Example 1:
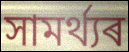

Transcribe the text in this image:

সামৰ্থ্যৰ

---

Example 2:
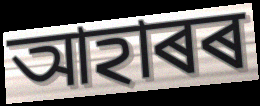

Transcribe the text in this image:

আহাৰৰ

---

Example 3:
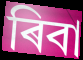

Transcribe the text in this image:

ৰিবা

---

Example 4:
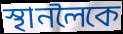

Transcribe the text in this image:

স্থানলৈকে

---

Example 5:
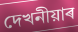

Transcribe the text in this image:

দেখনীয়াৰ